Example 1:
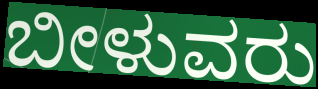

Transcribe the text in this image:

ಬೀಳುವರು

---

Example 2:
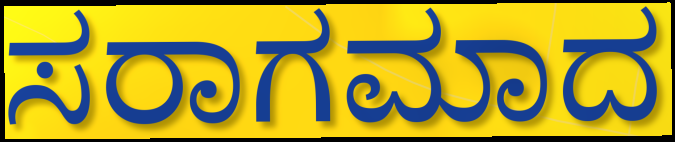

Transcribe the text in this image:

ಸರಾಗಮಾದ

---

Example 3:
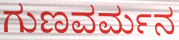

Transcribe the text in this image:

ಗುಣವರ್ಮನ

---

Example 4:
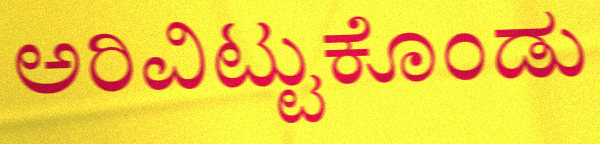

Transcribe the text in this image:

ಅರಿವಿಟ್ಟುಕೊಂಡು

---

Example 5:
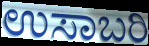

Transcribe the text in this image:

ಉಸಾಬರಿ